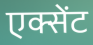
एक्सेंट